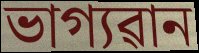
ভাগ্যৱান